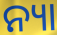
ନ୍ୟା